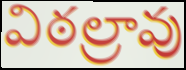
విఠల్రావు